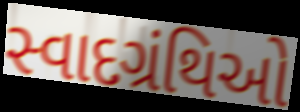
સ્વાદગ્રંથિઓ